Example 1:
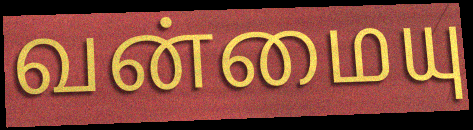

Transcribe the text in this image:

வன்மையு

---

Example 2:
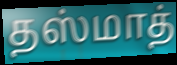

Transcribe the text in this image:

தஸ்மாத்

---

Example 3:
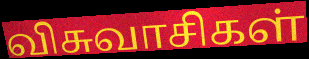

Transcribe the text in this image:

விசுவாசிகள்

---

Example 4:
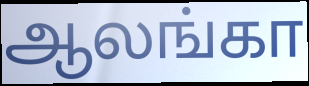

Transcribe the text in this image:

ஆலங்கா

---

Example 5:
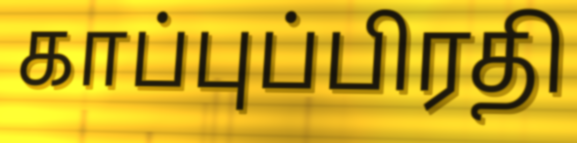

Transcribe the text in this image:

காப்புப்பிரதி